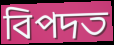
বিপদত